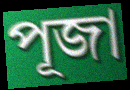
পূজা